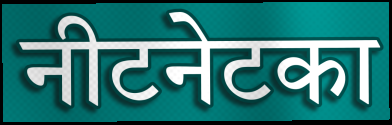
नीटनेटका